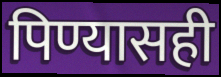
पिण्यासही